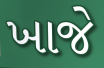
ખાજે